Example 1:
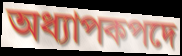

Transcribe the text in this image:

অধ্যাপকপদে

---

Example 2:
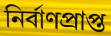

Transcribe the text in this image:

নির্বাণপ্রাপ্ত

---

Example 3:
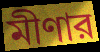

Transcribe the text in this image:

মীণার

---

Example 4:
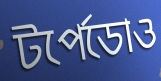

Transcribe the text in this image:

টর্পেডোও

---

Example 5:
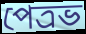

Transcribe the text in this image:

পেত্রভ